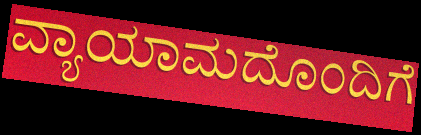
ವ್ಯಾಯಾಮದೊಂದಿಗೆ